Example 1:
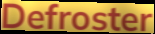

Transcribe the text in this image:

Defroster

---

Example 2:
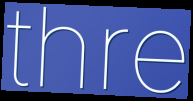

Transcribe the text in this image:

thre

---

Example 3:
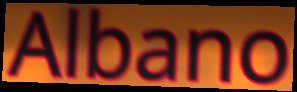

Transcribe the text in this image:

Albano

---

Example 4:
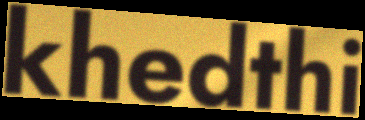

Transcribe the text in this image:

khedthi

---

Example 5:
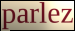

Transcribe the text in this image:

parlez